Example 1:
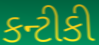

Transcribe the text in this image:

કન્ટીકી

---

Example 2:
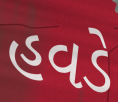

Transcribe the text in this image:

હવડે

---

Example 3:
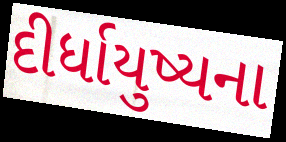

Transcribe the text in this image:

દીર્ધાયુષ્યના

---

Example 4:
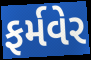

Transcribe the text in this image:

ફર્મવેર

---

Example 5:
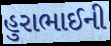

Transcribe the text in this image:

હુરાભાઈની